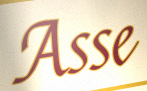
Asse